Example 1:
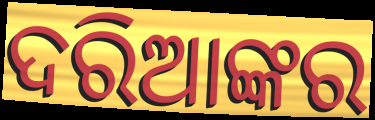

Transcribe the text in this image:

ଦରିଆଙ୍କର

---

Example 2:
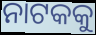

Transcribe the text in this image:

ନାଟକକୁ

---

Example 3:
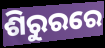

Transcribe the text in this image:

ଶିରୁରରେ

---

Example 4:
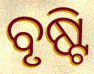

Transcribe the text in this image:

ବୃଷ୍ଟି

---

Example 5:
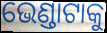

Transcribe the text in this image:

ଭେଣ୍ଡାଟାକୁ